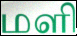
மளி